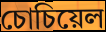
চোচিয়েল